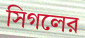
সিগলের